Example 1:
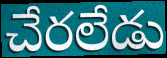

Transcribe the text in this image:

చేరలేడు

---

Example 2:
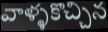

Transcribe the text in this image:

వాళ్ళకొచ్చిన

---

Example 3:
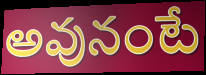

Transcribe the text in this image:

అవునంటే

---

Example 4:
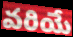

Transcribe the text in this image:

వరియే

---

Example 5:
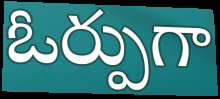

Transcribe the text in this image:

ఓర్పుగా